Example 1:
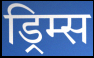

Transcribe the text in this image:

ड्रिम्स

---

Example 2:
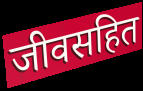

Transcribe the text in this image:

जीवसहित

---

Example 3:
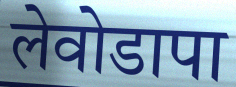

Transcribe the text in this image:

लेवोडापा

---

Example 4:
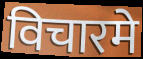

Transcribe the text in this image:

विचारमे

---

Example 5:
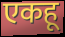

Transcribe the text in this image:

एकहू